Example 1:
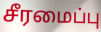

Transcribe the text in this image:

சீரமைப்பு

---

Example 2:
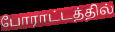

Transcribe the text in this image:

போராட்டத்தில்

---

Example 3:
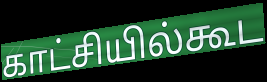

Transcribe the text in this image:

காட்சியில்கூட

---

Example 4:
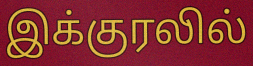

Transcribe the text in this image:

இக்குரலில்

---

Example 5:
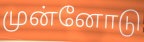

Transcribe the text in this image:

முன்னோடு